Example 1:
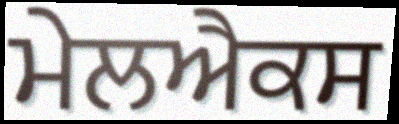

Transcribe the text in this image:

ਮੇਲਐਕਸ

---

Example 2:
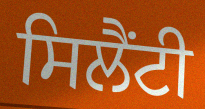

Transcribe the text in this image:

ਸਿਲੈਂਟੀ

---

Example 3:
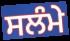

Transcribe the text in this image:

ਸਲੰਮੇ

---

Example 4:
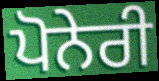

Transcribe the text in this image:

ਪੋਨੇਰੀ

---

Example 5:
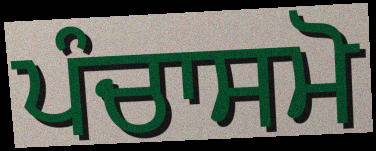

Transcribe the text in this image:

ਪੰਚਾਸਮੋ